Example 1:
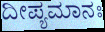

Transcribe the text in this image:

ದೀಪ್ಯಮಾನಃ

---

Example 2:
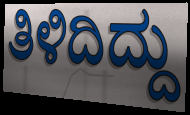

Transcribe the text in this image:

ತಿಳಿದಿದ್ದು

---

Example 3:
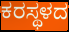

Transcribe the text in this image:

ಕರಸ್ಥಳದ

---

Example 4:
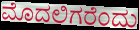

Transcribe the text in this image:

ಮೊದಲಿಗರೆಂದು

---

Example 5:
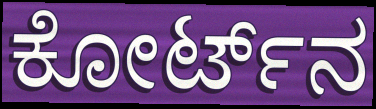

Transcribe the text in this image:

ಕೋರ್ಟ್‍ನ